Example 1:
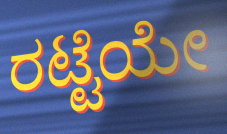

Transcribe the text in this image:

ರಟ್ಟೆಯೇ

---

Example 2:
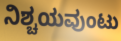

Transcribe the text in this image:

ನಿಶ್ಚಯವುಂಟು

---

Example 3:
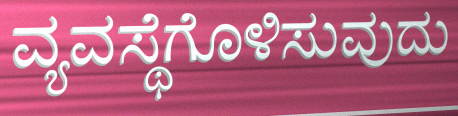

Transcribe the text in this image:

ವ್ಯವಸ್ಥೆಗೊಳಿಸುವುದು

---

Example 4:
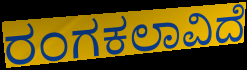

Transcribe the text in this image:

ರಂಗಕಲಾವಿದೆ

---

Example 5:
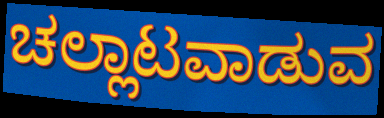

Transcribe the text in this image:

ಚಲ್ಲಾಟವಾಡುವ